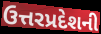
ઉત્તરપ્રદેશની